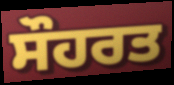
ਸੌਹਰਤ